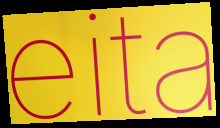
eita